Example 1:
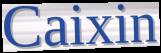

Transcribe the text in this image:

Caixin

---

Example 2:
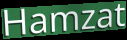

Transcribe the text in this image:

Hamzat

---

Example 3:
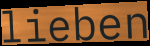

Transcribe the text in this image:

lieben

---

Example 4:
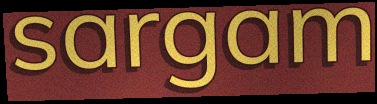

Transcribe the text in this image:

sargam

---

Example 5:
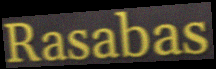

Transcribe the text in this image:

Rasabas